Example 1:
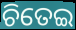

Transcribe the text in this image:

ଚିତେଇ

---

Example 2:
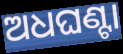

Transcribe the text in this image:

ଅଧଘଣ୍ଟା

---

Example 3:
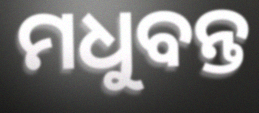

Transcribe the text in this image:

ମଧୁବନ୍ତ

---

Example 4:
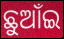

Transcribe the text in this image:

ଛୁଆଁଇ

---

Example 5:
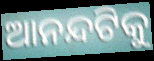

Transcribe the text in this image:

ଆନନ୍ଦଟିକୁ